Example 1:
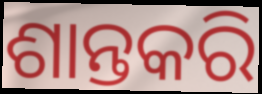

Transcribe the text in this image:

ଶାନ୍ତକରି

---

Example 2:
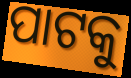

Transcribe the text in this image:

ପାଟକୁ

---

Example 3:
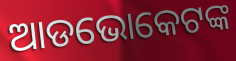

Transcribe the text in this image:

ଆଡଭୋକେଟଙ୍କ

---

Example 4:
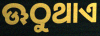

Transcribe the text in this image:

ଊଠୁଥାଏ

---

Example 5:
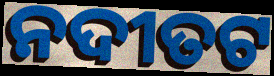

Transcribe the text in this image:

ନଦୀତଟ